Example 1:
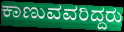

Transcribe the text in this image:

ಕಾಣುವವರಿದ್ದರು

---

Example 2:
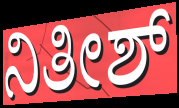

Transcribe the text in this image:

ನಿತೀಶ್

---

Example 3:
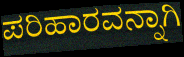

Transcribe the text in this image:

ಪರಿಹಾರವನ್ನಾಗಿ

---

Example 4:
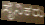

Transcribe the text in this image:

ಸೈನಿಕರು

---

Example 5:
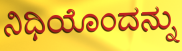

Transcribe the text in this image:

ನಿಧಿಯೊಂದನ್ನು